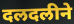
दलदलीने